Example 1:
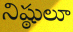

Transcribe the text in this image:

నిష్ఠులూ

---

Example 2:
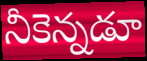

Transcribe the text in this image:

నీకెన్నడూ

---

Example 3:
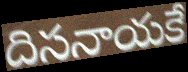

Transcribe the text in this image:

దిసనాయకే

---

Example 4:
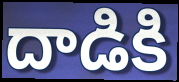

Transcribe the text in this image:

దాడికి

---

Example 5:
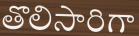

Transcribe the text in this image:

తొలిసారిగా